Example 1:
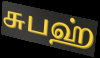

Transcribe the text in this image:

சுபஹ்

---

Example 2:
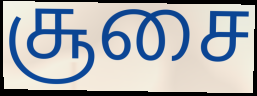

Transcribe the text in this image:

சூசை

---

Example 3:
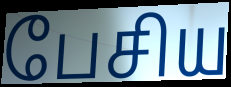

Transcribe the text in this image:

பேசிய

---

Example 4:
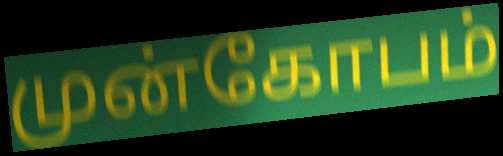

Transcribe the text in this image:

முன்கோபம்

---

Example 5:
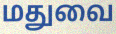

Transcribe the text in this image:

மதுவை